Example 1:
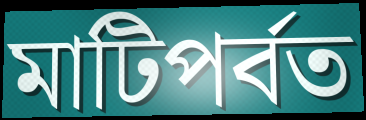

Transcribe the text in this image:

মাটিপৰ্বত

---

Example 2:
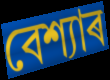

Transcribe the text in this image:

বেশ্যাৰ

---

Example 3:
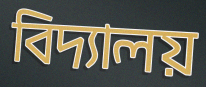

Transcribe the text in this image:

বিদ্যালয়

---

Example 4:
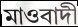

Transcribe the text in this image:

মাওবাদী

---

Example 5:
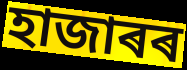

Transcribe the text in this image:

হাজাৰৰ